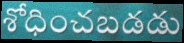
శోధించబడడు